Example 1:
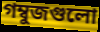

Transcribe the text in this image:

গম্বুজগুলো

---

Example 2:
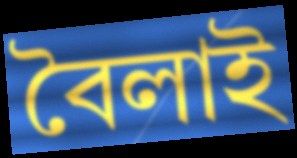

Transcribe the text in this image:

বৈলাই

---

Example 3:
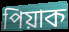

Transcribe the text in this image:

পিয়াক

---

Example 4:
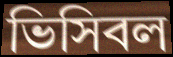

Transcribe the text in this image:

ভিসিবল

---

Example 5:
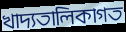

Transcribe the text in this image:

খাদ্যতালিকাগত